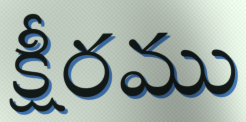
క్షీరము